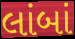
લાંબાં